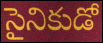
సైనికుడో